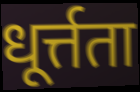
धूर्त्तता